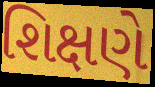
શિક્ષણે